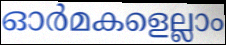
ഓർമകളെല്ലാം